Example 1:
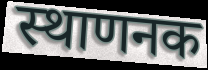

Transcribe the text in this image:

स्थाणनक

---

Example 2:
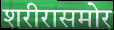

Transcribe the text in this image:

शरीरासमोर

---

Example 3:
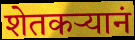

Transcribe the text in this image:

शेतकर्‍यानं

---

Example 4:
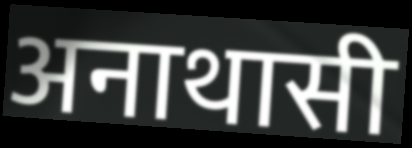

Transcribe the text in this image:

अनाथासी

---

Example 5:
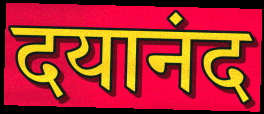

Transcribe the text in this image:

दयानंद